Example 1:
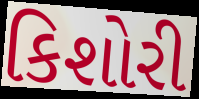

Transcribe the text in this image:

કિશોરી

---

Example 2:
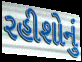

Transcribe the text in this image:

રહીશોનું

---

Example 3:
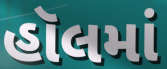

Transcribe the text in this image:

હૉલમાં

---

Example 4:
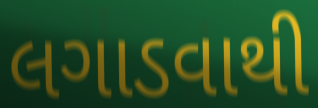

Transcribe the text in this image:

લગાડવાથી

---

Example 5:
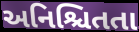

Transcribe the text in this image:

અનિશ્ચિતતા